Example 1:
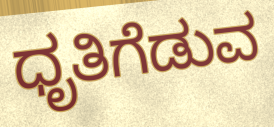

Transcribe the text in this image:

ಧೃತಿಗೆಡುವ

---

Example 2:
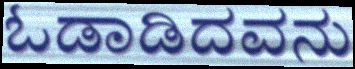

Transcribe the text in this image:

ಓಡಾಡಿದವನು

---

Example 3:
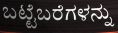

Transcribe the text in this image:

ಬಟ್ಟೆಬರೆಗಳನ್ನು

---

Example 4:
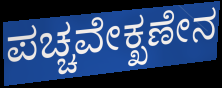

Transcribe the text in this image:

ಪಚ್ಚವೇಕ್ಖಣೇನ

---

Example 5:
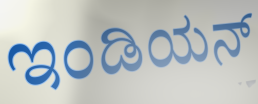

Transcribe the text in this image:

ಇಂಡಿಯನ್